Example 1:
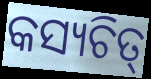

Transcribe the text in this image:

କସ୍ୟଚିତ୍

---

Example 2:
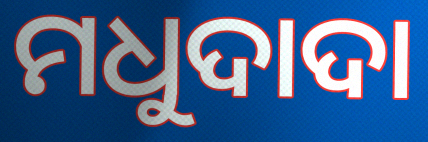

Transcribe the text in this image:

ମଧୁଦାଦା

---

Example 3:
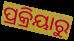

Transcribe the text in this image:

ପ୍ରକ୍ରିୟାରୁ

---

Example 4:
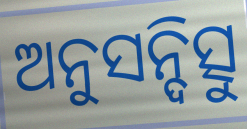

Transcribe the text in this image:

ଅନୁସନ୍ଦିତ୍ସୁ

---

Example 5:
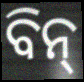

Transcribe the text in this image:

ବିନ୍